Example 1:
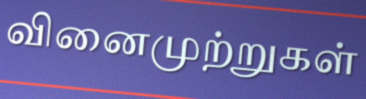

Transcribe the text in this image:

வினைமுற்றுகள்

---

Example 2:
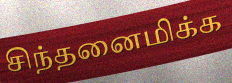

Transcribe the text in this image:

சிந்தனைமிக்க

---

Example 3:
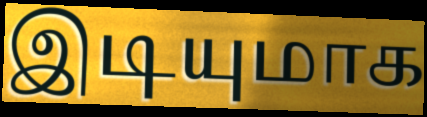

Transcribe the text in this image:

இடியுமாக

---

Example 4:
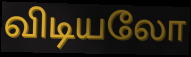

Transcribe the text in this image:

விடியலோ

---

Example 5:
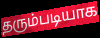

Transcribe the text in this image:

தரும்படியாக